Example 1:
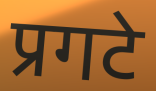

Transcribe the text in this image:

प्रगटे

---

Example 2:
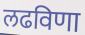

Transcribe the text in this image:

लढविणा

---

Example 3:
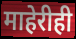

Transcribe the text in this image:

माहेरीही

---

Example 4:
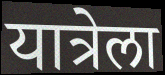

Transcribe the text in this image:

यात्रेला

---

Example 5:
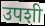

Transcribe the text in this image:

उपशी